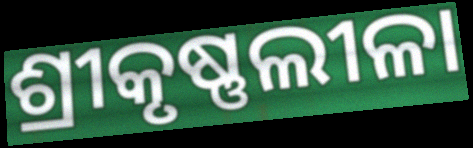
ଶ୍ରୀକୃଷ୍ଣଲୀଳା